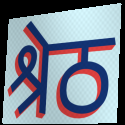
श्रेठ